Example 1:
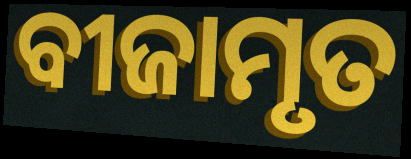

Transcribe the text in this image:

ବୀଜାମୃତ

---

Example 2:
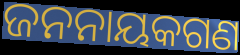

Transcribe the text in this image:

ଜନନାୟକଗଣ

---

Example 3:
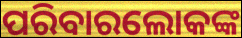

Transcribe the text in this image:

ପରିବାରଲୋକଙ୍କ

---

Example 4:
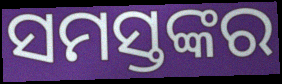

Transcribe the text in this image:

ସମସ୍ତଙ୍କର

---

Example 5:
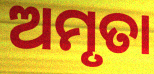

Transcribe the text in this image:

ଅମୃତା